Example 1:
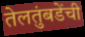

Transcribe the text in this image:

तेलतुंबडेंची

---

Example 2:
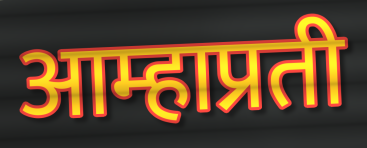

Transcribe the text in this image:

आम्हाप्रती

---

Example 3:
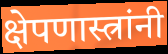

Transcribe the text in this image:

क्षेपणास्त्रांनी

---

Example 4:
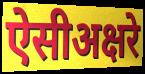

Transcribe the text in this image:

ऐसीअक्षरे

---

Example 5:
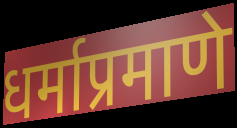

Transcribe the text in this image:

धर्माप्रमाणे